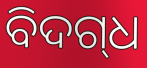
ବିଦଗ୍‌ଧ